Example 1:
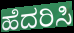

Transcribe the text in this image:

ಹೆದರಿಸಿ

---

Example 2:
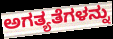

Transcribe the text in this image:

ಅಗತ್ಯತೆಗಳನ್ನು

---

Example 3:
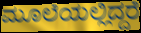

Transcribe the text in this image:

ಮೂಲೆಯಲ್ಲಿದ್ದರೆ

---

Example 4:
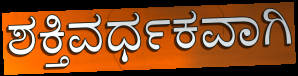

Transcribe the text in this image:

ಶಕ್ತಿವರ್ಧಕವಾಗಿ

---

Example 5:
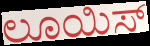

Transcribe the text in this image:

ಲೂಯಿಸ್